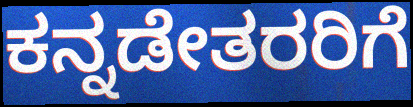
ಕನ್ನಡೇತರರಿಗೆ